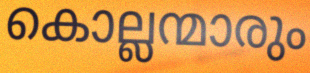
കൊല്ലന്മാരും